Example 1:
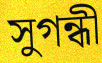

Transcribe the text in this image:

সুগন্ধী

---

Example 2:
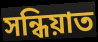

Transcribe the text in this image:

সন্ধিয়াত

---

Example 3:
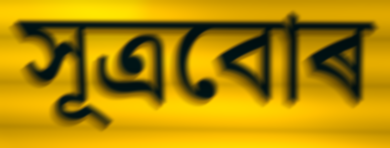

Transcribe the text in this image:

সূত্ৰবোৰ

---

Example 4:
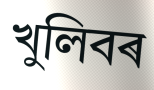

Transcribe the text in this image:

খুলিবৰ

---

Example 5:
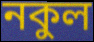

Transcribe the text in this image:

নকুল